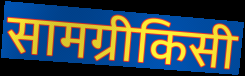
सामग्रीकिसी